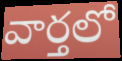
వార్తలో